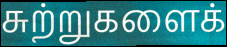
சுற்றுகளைக்